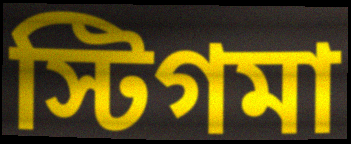
স্টিগমা